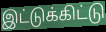
இட்டுக்கிட்டு